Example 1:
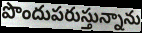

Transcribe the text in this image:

పొందుపరుస్తున్నాను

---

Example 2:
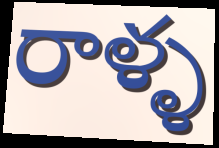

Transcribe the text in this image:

రాళ్ళ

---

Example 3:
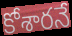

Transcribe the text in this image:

కోశారనే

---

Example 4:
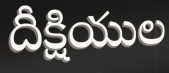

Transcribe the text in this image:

దీక్షియుల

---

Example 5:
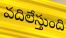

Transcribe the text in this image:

వదిలేస్తుంది